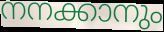
നനക്കാനും